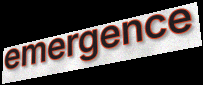
emergence